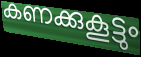
കണക്കുകൂട്ടും